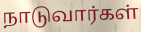
நாடுவார்கள்